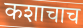
कशाचाच